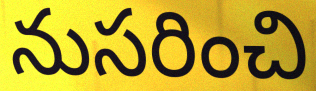
నుసరించి